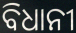
ବିଧାନୀ